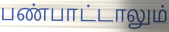
பண்பாட்டாலும்